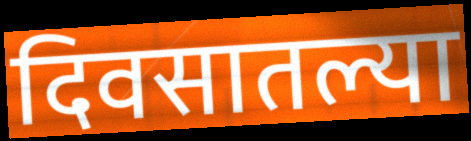
दिवसातल्या